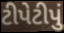
ટીપેટીપું